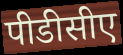
पीडीसीए